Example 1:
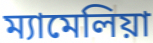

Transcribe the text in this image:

ম্যামেলিয়া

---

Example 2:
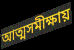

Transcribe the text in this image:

আত্মসমীক্ষায়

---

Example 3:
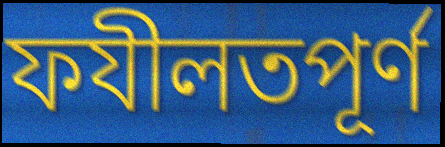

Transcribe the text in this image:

ফযীলতপূর্ণ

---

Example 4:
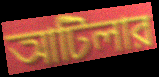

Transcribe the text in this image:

আটিলার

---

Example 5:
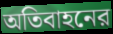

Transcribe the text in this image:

অতিবাহনের